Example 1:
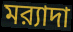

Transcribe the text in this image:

মর‍্যাদা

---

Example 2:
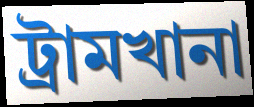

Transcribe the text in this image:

ট্রামখানা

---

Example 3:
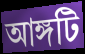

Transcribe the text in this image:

আঙ্গটি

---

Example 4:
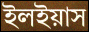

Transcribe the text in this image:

ইলইয়াস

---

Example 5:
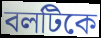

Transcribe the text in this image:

বলটিকে